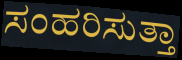
ಸಂಹರಿಸುತ್ತಾ